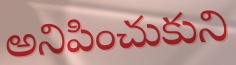
అనిపించుకుని